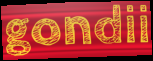
gondii